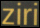
ziri